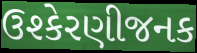
ઉશ્કેરણીજનક